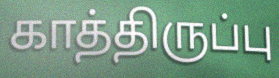
காத்திருப்பு